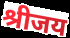
श्रीजय